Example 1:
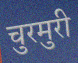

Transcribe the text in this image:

चुरमुरी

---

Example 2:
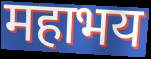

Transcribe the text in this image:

महाभय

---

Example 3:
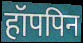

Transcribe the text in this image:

हॉपपिन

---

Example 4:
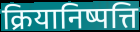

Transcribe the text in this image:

क्रियानिष्पत्ति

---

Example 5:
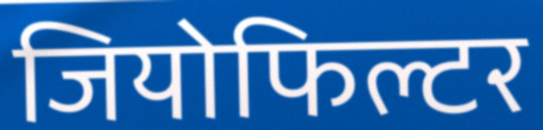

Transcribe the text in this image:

जियोफिल्टर